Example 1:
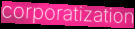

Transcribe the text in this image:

corporatization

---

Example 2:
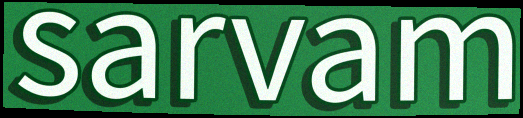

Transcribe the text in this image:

sarvam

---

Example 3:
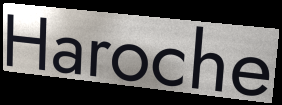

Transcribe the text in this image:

Haroche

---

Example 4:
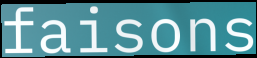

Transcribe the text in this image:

faisons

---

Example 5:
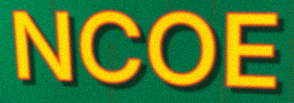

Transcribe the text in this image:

NCOE